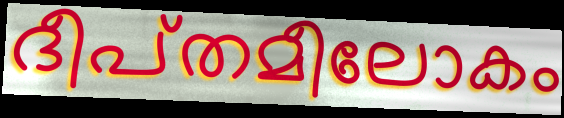
ദീപ്‌തമീലോകം